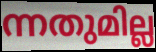
ന്നതുമില്ല